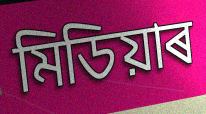
মিডিয়াৰ